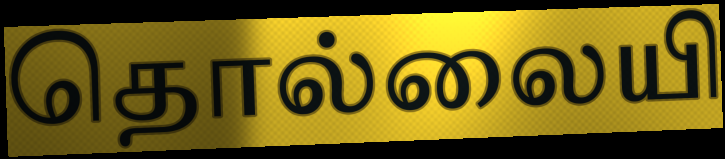
தொல்லையி